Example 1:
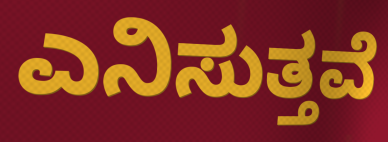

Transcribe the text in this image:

ಎನಿಸುತ್ತವೆ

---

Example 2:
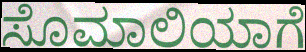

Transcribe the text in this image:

ಸೊಮಾಲಿಯಾಗೆ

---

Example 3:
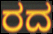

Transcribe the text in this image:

ರದ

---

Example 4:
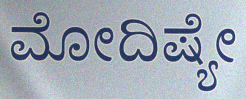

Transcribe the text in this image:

ಮೋದಿಷ್ಯೇ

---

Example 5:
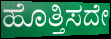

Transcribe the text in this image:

ಹೊತ್ತಿಸದೇ